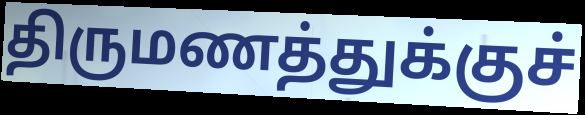
திருமணத்துக்குச்